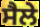
ਸੈਲੇ